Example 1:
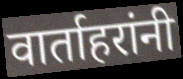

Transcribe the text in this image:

वार्ताहरांनी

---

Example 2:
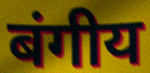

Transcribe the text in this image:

बंगीय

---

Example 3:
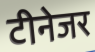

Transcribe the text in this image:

टीनेजर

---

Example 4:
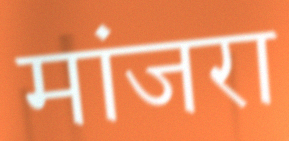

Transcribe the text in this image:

मांजरा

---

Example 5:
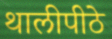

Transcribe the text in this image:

थालीपीठे